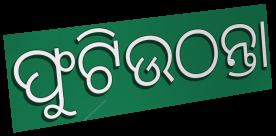
ଫୁଟିଉଠନ୍ତା